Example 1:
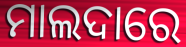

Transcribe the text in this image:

ମାଲଦାରେ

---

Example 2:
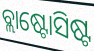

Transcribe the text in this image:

ବ୍ଲାଷ୍ଟୋସିଷ୍ଟ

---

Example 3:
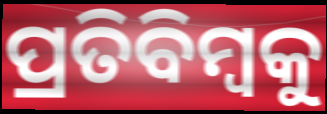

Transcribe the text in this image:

ପ୍ରତିବିମ୍ୱକୁ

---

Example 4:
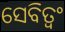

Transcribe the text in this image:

ସେବିତ୍ୱଂ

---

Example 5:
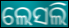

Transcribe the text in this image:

ଲେସଲି